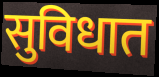
सुविधात